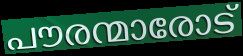
പൗരന്മാരോട്